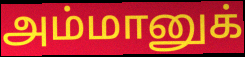
அம்மானுக்